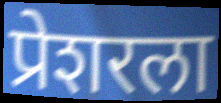
प्रेशरला